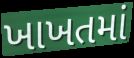
ખાખતમાં